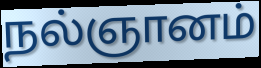
நல்ஞானம்